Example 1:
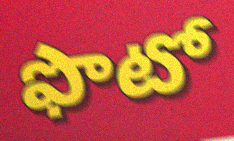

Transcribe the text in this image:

ఫొటో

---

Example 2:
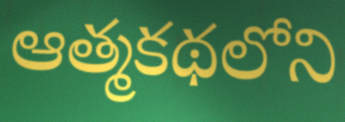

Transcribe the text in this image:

ఆత్మకథలోని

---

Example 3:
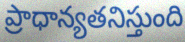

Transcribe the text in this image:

ప్రాధాన్యతనిస్తుంది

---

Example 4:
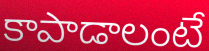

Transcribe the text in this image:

కాపాడాలంటే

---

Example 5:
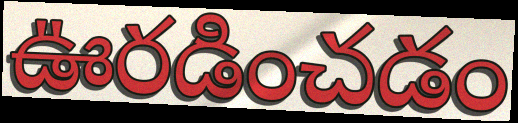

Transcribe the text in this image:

ఊరడించడం